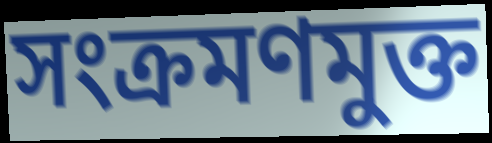
সংক্রমণমুক্ত